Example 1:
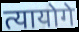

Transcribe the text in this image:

त्यायोगे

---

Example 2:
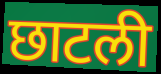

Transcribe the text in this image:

छाटली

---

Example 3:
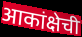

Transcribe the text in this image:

आकांक्षेची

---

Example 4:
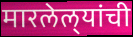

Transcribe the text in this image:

मारलेल्यांची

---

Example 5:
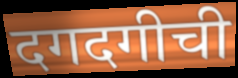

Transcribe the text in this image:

दगदगीची